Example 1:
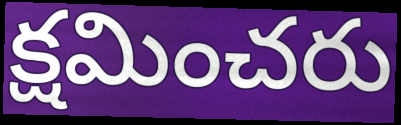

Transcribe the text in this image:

క్షమించరు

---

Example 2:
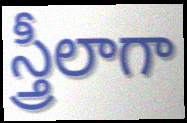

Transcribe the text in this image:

స్త్రీలాగా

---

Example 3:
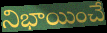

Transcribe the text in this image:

నిభాయించే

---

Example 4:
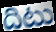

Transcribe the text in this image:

దిటు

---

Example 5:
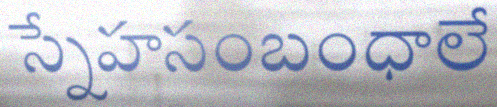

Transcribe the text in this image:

స్నేహసంబంధాలే